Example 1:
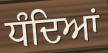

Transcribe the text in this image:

ਧੰਦਿਆਂ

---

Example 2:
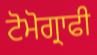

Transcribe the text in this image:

ਟੋਮੋਗ੍ਰਾਫੀ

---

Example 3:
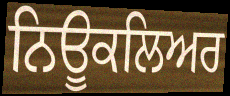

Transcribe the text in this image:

ਨਿਊਕਲਿਅਰ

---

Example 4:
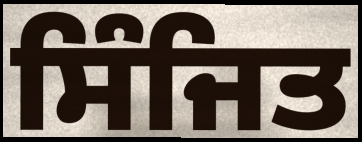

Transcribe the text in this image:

ਸਿੰਜਿਤ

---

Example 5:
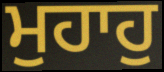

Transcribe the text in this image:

ਮੁਹਾਹੁ